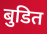
बुडित